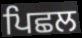
ਪਿਛਲ